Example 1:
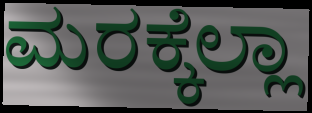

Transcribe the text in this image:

ಮರಕ್ಕೆಲ್ಲಾ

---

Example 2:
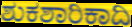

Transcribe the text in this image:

ಶುಕಶಾರಿಕಾದಿ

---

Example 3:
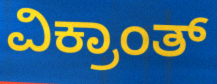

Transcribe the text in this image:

ವಿಕ್ರಾಂತ್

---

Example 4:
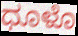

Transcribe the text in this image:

ಧೂಳೊ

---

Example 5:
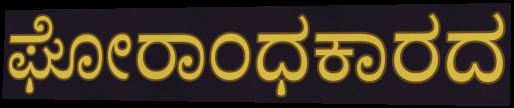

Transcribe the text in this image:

ಘೋರಾಂಧಕಾರದ